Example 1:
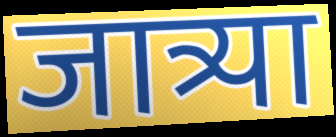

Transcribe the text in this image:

जात्र्या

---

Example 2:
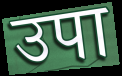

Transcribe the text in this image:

उपा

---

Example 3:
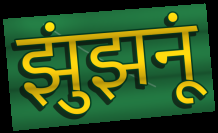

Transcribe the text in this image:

झुंझनूं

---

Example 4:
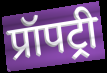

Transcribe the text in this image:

प्रॉपट्री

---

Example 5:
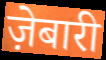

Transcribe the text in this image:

ज़ेबारी